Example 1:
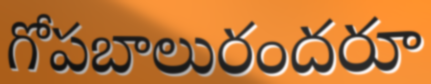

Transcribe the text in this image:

గోపబాలురందరూ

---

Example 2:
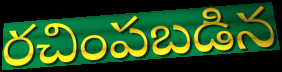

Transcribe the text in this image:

రచింపబడిన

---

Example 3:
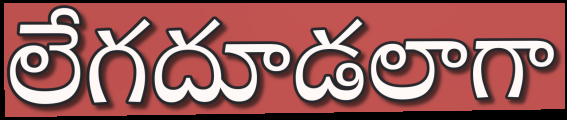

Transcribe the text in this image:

లేగదూడలాగా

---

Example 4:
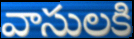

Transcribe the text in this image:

వాసులకి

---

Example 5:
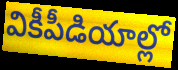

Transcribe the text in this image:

వికీపీడియాల్లో